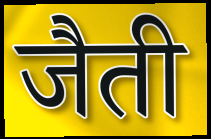
जैती